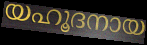
യഹൂദനായ